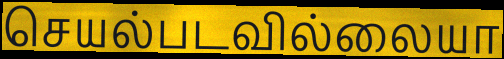
செயல்படவில்லையா